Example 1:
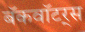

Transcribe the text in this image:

बॅकवॉटर्स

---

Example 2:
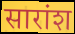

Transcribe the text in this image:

सारांश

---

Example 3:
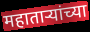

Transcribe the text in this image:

महाताऱ्यांच्या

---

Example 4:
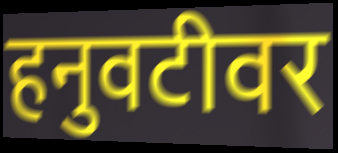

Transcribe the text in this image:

हनुवटीवर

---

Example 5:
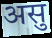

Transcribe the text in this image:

असु